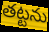
తట్టను